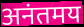
अनंतमय